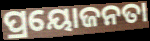
ପ୍ରୟୋଜନତା